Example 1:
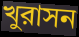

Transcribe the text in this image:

খুরাসন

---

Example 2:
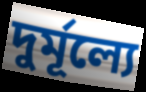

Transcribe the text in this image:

দুর্মূল্যে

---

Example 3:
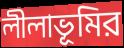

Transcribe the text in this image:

লীলাভূমির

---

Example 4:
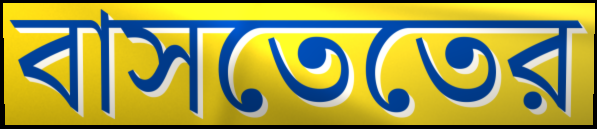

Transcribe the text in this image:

বাসতেতের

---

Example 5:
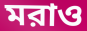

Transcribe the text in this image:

মরাও